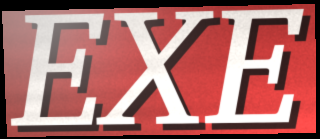
EXE